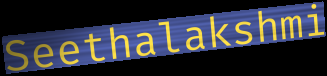
Seethalakshmi